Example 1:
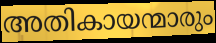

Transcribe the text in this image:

അതികായന്മാരും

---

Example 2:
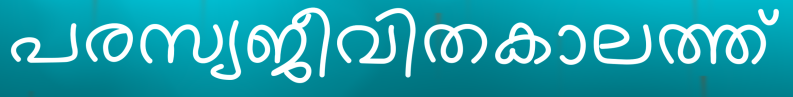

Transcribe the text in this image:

പരസ്യജീവിതകാലത്ത്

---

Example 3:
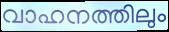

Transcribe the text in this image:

വാഹനത്തിലും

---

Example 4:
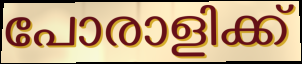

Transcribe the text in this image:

പോരാളിക്ക്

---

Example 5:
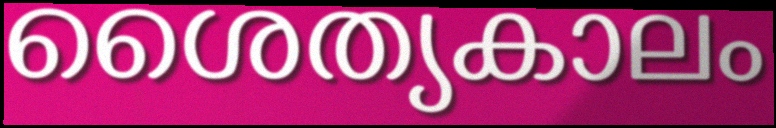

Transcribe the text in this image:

ശൈത്യകാലം